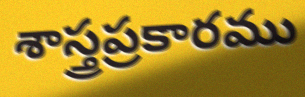
శాస్త్రప్రకారము